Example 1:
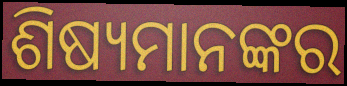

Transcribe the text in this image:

ଶିଷ୍ୟମାନଙ୍କର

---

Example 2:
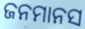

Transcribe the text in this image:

ଜନମାନସ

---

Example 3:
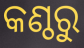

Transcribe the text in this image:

କଣ୍ଠରୁ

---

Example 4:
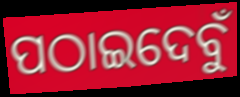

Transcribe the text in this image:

ପଠାଇଦେବୁଁ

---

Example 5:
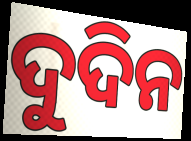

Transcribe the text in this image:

ଦୁଦିନ